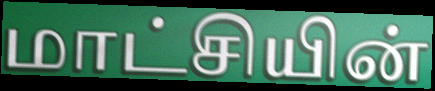
மாட்சியின்